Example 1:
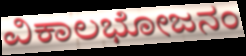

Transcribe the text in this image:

ವಿಕಾಲಭೋಜನಂ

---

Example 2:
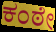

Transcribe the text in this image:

ಕಂಠೇ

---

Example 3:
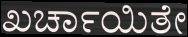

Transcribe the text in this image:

ಖರ್ಚಾಯಿತೇ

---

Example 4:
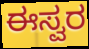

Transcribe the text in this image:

ಈಸ್ವರ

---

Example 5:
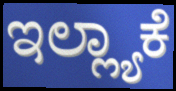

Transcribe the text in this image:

ಇಲ್ಲ್ಯಾಕೆ